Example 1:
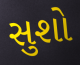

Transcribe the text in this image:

સુશો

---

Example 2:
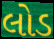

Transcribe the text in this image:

લોડ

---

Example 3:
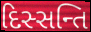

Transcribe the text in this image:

દિસ્સન્તિ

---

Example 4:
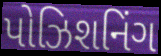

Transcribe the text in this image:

પોઝિશનિંગ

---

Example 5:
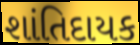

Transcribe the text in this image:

શાંતિદાયક